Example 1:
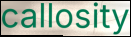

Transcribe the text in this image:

callosity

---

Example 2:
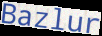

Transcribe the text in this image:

Bazlur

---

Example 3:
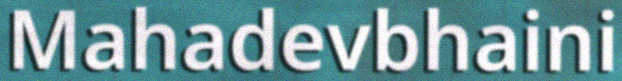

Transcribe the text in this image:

Mahadevbhaini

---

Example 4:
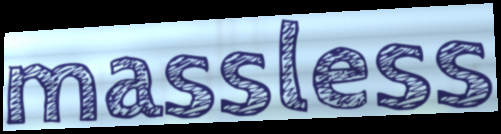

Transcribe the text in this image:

massless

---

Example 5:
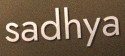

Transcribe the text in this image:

sadhya